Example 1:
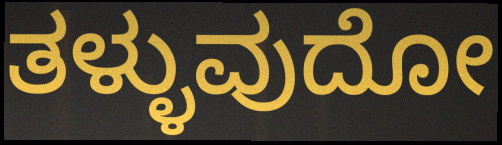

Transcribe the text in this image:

ತಳ್ಳುವುದೋ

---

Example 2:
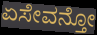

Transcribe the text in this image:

ಏಸೇವನ್ತೋ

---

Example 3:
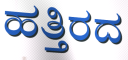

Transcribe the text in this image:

ಹತ್ತಿರದ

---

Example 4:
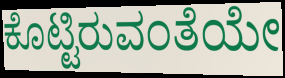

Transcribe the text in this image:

ಕೊಟ್ಟಿರುವಂತೆಯೇ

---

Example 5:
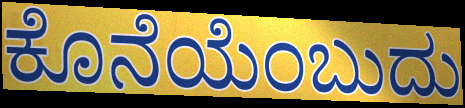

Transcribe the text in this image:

ಕೊನೆಯೆಂಬುದು